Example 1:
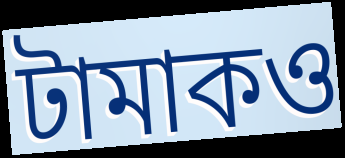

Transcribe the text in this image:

টামাকও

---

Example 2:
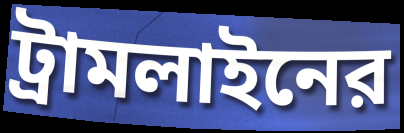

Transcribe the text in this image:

ট্রামলাইনের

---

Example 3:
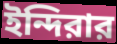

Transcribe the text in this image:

ইন্দিরার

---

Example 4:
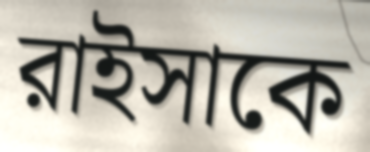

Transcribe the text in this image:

রাইসাকে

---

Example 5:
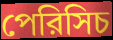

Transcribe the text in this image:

পেরিসিচ